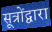
सूत्रोंद्वारा